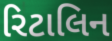
રિટાલિન